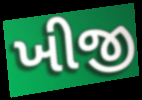
ખીજી